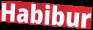
Habibur